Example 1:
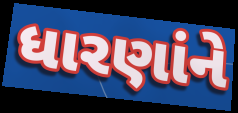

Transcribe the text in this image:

ધારણાંને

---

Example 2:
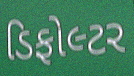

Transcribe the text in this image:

ડિફોલ્ટર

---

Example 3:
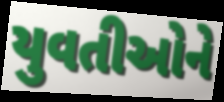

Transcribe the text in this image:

યુવતીઓને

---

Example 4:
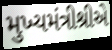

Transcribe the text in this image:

મુખ્યમંત્રીશ્રીએ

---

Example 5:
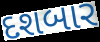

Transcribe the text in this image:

દશબાર